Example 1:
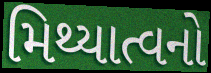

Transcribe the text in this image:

મિથ્યાત્વનો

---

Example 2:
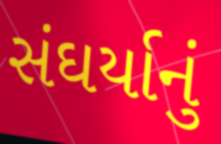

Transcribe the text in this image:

સંઘર્યાનું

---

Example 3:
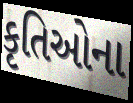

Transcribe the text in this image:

કૃતિઓના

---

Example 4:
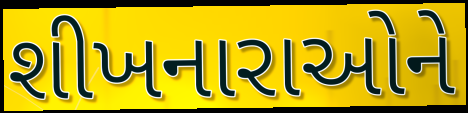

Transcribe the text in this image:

શીખનારાઓને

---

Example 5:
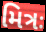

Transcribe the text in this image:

મિત્રઃ